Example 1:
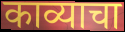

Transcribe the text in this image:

काव्याचा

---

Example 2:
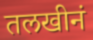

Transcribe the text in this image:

तलखीनं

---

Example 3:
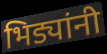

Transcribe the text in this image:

भिड्यांनी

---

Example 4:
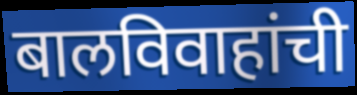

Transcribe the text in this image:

बालविवाहांची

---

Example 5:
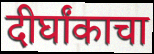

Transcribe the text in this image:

दीर्घांकाचा